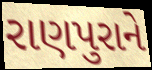
રાણપુરાને